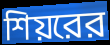
শিয়রের